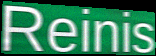
Reinis